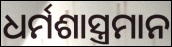
ଧର୍ମଶାସ୍ତ୍ରମାନ